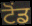
ਟੋਂਡ